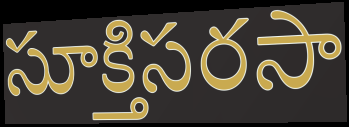
సూక్తిసరసా